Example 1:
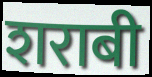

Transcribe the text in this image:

शराबी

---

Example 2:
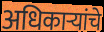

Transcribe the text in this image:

अधिकाऱ्यांचे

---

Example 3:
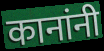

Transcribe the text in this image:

कानांनी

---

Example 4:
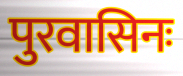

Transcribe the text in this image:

पुरवासिनः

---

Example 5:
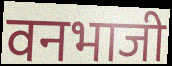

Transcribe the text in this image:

वनभाजी